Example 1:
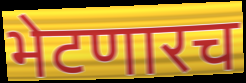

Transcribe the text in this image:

भेटणारच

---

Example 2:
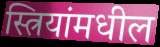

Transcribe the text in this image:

स्त्रियांमधील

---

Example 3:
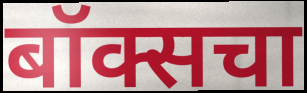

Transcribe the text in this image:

बॉक्सचा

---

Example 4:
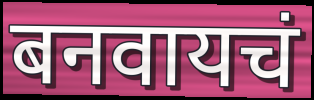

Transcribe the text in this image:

बनवायचं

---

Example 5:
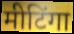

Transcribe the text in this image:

मीटिंगा